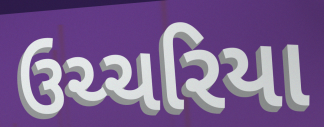
ઉચ્ચરિયા